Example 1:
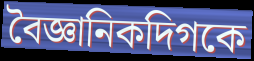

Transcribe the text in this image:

বৈজ্ঞানিকদিগকে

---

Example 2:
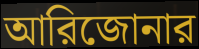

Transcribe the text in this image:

আরিজোনার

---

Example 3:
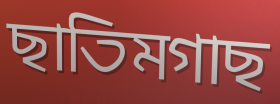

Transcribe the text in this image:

ছাতিমগাছ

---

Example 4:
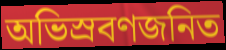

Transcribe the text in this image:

অভিস্রবণজনিত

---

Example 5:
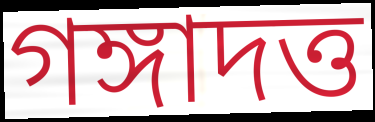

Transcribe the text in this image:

গঙ্গাদত্ত